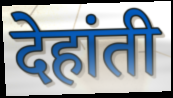
देहांती